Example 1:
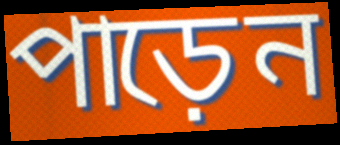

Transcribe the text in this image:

পাড়েন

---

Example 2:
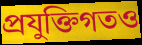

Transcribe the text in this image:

প্রযুক্তিগতও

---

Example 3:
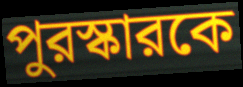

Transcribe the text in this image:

পুরস্কারকে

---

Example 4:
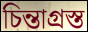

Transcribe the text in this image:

চিন্তাগ্রস্ত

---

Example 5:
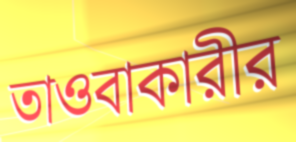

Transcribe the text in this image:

তাওবাকারীর